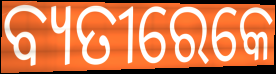
ବ୍ୟତୀରେକେ